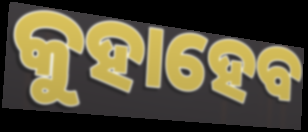
କୁହାହେବ